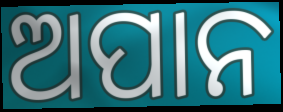
ଅପାନ